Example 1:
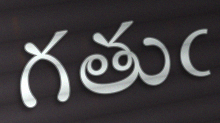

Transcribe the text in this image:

గతుఁ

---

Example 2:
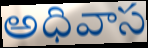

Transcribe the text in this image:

అధివాస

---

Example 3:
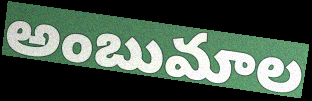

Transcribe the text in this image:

అంబుమాల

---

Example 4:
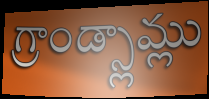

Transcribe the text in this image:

గ్రాండ్స్లామ్లు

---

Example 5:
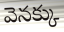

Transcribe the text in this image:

వెనక్కు